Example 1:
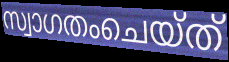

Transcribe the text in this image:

സ്വാഗതംചെയ്ത്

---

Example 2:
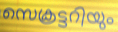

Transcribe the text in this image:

സെക്രട്ടറിയും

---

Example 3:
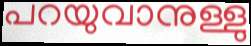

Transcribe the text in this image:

പറയുവാനുള്ളു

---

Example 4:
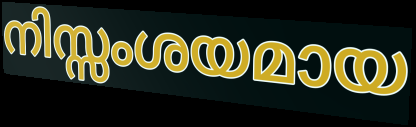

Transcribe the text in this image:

നിസ്സംശയമായ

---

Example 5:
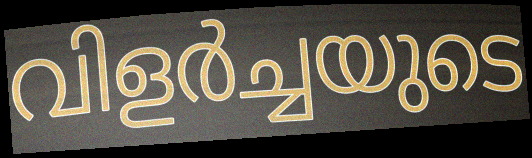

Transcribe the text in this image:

വിളർച്ചയുടെ